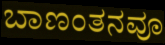
ಬಾಣಂತನವೂ